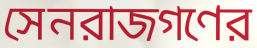
সেনরাজগণের